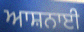
ਆਸ਼ਨਾਈ